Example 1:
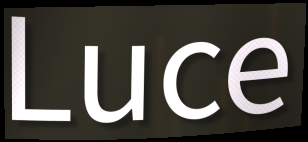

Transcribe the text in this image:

Luce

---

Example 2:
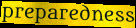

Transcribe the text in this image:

preparedness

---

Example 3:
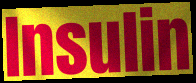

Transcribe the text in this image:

Insulin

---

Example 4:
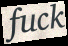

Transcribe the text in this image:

fuck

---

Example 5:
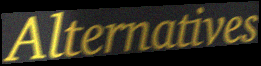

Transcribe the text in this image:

Alternatives